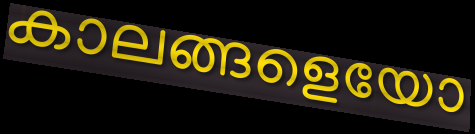
കാലങ്ങളെയോ